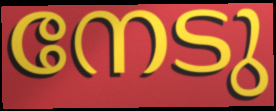
നേടു